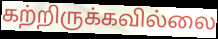
கற்றிருக்கவில்லை